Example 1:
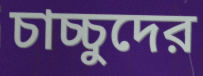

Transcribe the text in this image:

চাচ্চুদের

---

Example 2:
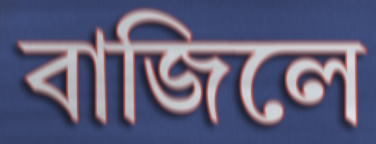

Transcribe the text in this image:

বাজিলে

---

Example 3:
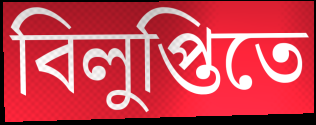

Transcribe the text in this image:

বিলুপ্তিতে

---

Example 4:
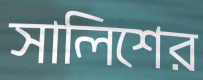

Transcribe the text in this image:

সালিশের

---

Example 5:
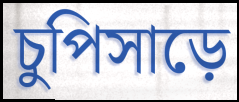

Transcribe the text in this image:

চুপিসাড়ে